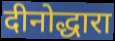
दीनोद्धारा